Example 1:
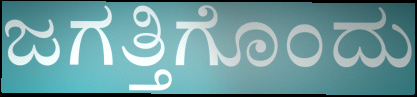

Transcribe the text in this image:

ಜಗತ್ತಿಗೊಂದು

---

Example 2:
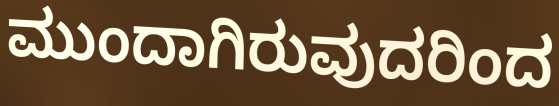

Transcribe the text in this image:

ಮುಂದಾಗಿರುವುದರಿಂದ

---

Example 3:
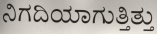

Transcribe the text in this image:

ನಿಗದಿಯಾಗುತ್ತಿತ್ತು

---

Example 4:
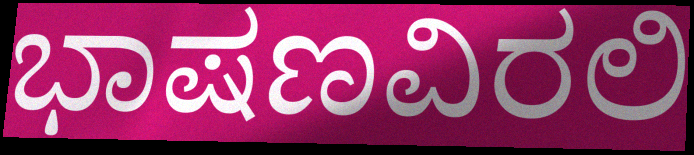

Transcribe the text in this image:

ಭಾಷಣವಿರಲಿ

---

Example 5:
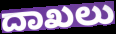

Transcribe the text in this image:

ದಾಖಲು